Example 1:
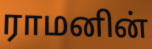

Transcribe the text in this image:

ராமனின்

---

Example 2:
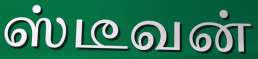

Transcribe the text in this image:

ஸ்டீவன்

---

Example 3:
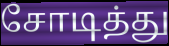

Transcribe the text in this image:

சோடித்து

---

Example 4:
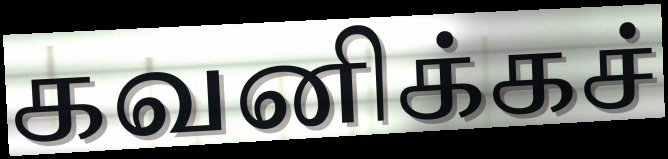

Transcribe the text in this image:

கவனிக்கச்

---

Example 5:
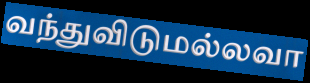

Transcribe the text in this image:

வந்துவிடுமல்லவா